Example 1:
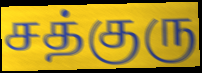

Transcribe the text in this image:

சத்குரு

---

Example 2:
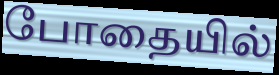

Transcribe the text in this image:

போதையில்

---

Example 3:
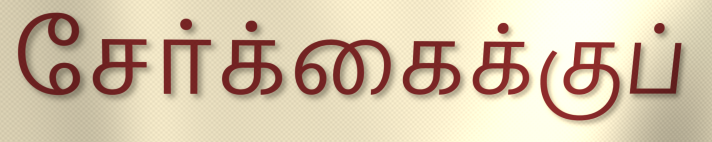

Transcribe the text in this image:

சேர்க்கைக்குப்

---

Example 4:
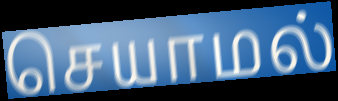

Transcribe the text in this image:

செயாமல்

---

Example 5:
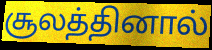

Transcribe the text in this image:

சூலத்தினால்